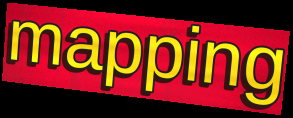
mapping